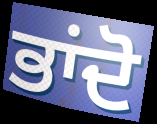
ਭਾਂਦੋ